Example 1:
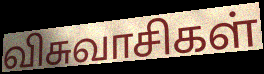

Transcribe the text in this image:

விசுவாசிகள்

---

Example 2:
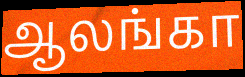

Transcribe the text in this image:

ஆலங்கா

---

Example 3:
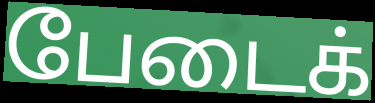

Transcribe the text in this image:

பேடைக்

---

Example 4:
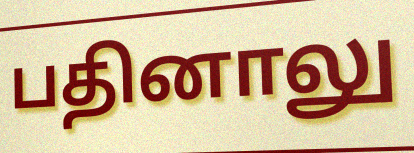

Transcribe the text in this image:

பதினாலு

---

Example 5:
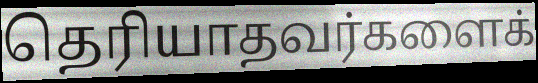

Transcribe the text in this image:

தெரியாதவர்களைக்